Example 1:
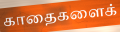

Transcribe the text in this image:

காதைகளைக்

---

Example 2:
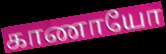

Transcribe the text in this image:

காணாயோ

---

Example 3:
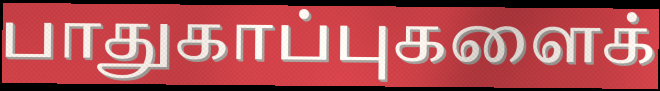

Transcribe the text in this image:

பாதுகாப்புகளைக்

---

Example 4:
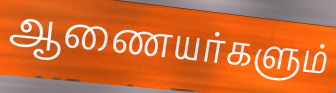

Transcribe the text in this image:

ஆணையர்களும்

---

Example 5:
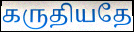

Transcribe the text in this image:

கருதியதே